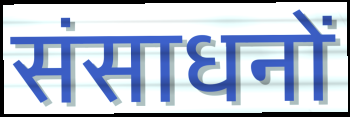
संसाधनों